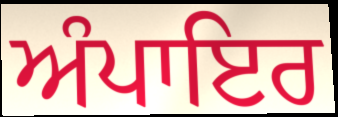
ਅੰਪਾਇਰ